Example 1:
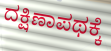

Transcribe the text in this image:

ದಕ್ಷಿಣಾಪಥಕ್ಕೆ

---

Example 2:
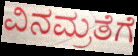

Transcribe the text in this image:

ವಿನಮ್ರತೆಗೆ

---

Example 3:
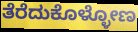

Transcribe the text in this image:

ತೆರೆದುಕೊಳ್ಳೋಣ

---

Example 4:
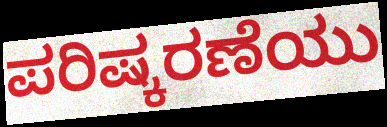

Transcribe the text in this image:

ಪರಿಷ್ಕರಣೆಯು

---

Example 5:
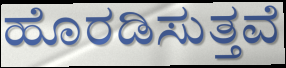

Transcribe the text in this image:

ಹೊರಡಿಸುತ್ತವೆ